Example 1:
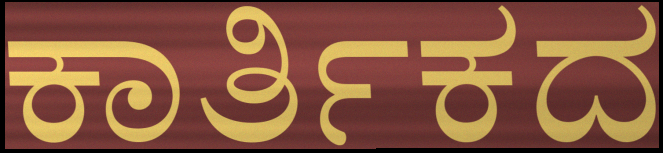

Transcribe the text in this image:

ಕಾರ್ತಿಕದ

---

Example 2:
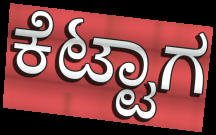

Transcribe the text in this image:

ಕೆಟ್ಟಾಗ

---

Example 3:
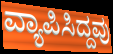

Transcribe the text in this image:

ವ್ಯಾಪಿಸಿದ್ದವು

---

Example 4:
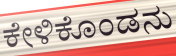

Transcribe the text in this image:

ಕೇಳಿಕೊಂಡನು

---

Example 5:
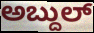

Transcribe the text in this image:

ಅಬ್ದುಲ್